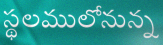
స్థలములోనున్న